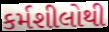
કર્મશીલોથી